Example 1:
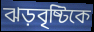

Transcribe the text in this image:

ঝড়বৃষ্টিকে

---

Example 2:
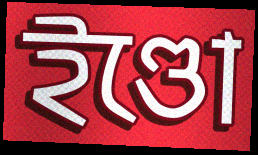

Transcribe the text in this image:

ইণ্ডো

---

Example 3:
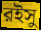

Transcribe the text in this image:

রইসু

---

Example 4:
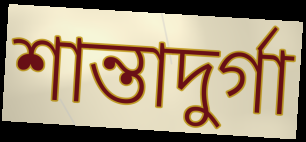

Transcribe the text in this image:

শান্তাদুর্গা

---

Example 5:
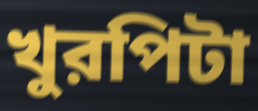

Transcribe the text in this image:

খুরপিটা